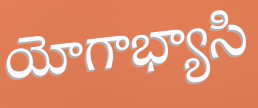
యోగాభ్యాసి